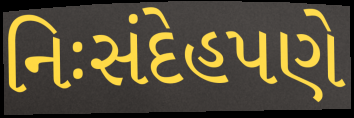
નિઃસંદેહપણે